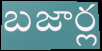
బజార్ల